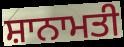
ਸ਼ਾਨਾਮਤੀ